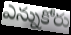
ఎన్నుకోరు